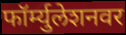
फॉर्म्युलेशनवर